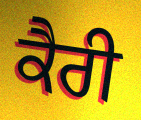
ਕੈਰੀ